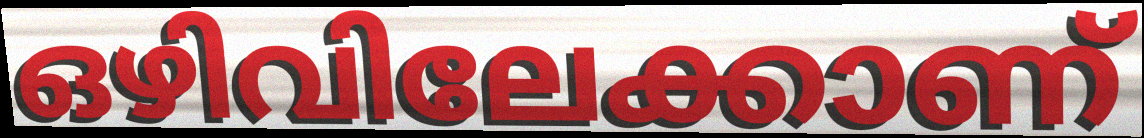
ഒഴിവിലേക്കാണ്